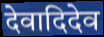
देवादिदेव